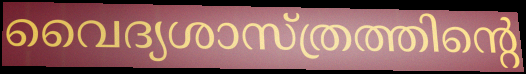
വൈദ്യശാസ്ത്രത്തിന്റെ